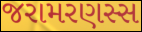
જરામરણસ્સ